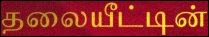
தலையீட்டின்